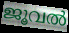
ജൂവൽ